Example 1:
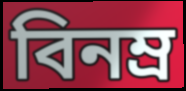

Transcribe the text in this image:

বিনম্ৰ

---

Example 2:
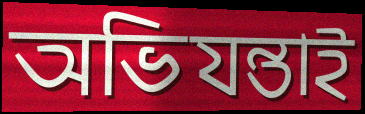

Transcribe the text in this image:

অভিযন্তাই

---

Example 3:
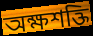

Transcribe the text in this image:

অক্ষশক্তি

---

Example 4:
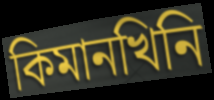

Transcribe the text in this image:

কিমানখিনি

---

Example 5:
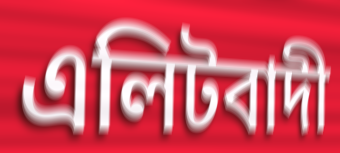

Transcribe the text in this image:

এলিটবাদী